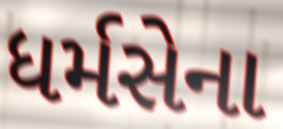
ધર્મસેના